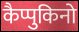
कैप्पुकिनो